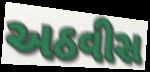
અઠવીસ